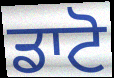
ਡਾਟੋ